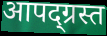
आपद्ग्रस्त